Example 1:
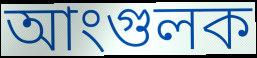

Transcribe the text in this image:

আংগুলক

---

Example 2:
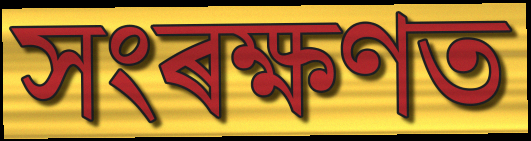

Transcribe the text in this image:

সংৰক্ষণত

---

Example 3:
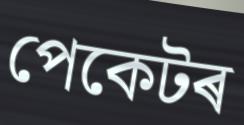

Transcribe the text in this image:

পেকেটৰ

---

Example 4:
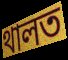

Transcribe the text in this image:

থালত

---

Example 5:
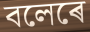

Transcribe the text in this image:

বলেৰে